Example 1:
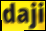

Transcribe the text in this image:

daji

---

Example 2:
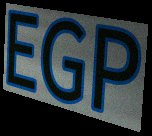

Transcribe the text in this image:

EGP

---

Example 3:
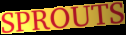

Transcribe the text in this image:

SPROUTS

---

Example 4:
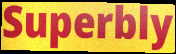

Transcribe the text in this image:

Superbly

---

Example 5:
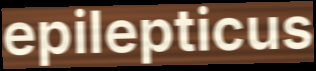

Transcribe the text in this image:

epilepticus